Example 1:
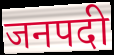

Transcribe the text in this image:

जनपदी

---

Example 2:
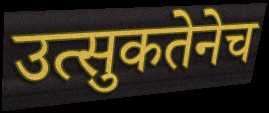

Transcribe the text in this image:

उत्सुकतेनेच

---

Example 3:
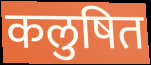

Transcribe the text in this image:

कलुषित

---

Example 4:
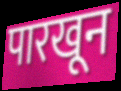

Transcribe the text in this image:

पारखून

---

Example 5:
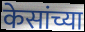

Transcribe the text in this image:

केसांच्या